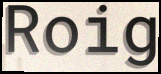
Roig